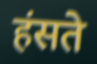
हंसते